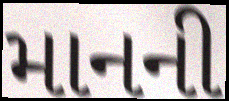
માનની